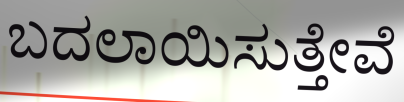
ಬದಲಾಯಿಸುತ್ತೇವೆ